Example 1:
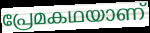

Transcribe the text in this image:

പ്രേമകഥയാണ്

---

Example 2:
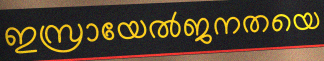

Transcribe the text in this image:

ഇസ്രായേൽജനതയെ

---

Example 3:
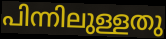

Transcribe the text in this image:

പിന്നിലുള്ളതു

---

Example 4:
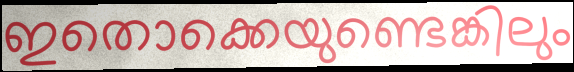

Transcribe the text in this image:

ഇതൊക്കെയുണ്ടെങ്കിലും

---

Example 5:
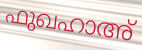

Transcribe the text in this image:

ഫുഖഹാഅ്